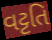
વટ્ટતિ